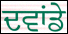
ਦਵਾਂਡੇ